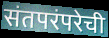
संतपरंपरेची